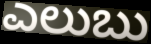
ಎಲುಬು